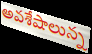
అవశేషాలున్న